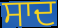
ਸਾਦ